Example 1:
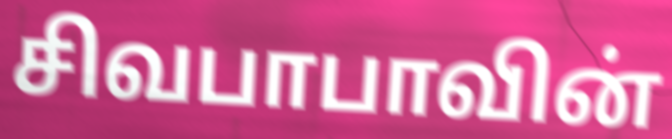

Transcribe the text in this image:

சிவபாபாவின்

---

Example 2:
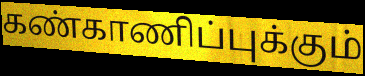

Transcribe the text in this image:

கண்காணிப்புக்கும்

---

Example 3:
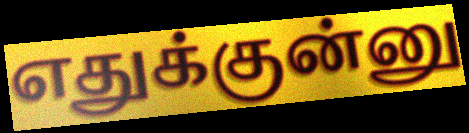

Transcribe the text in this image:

எதுக்குன்னு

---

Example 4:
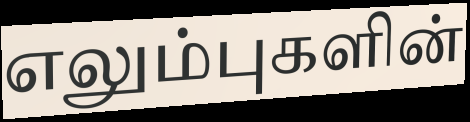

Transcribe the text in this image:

எலும்புகளின்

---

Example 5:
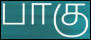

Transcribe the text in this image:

பாகு